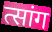
त्सांग